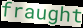
fraught